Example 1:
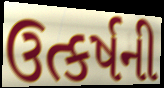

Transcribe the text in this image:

ઉત્કર્ષની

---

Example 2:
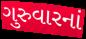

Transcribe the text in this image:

ગુરુવારનાં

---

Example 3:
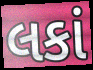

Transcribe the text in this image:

લકાં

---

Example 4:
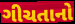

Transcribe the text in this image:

ગીચતાનો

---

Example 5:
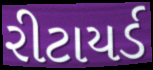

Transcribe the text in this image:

રીટાયર્ડ